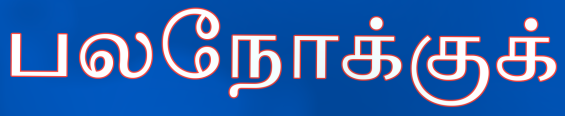
பலநோக்குக்